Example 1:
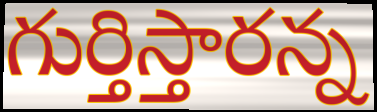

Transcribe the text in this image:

గుర్తిస్తారన్న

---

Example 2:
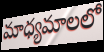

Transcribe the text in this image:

మాధ్యమాలలో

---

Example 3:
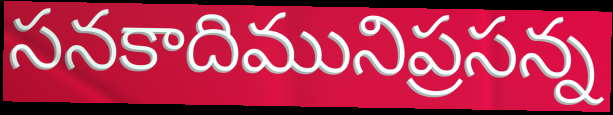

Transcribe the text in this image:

సనకాదిమునిప్రసన్న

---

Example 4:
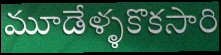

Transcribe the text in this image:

మూడేళ్ళకొకసారి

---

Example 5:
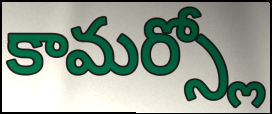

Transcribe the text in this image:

కామర్స్లో